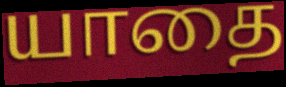
யாதை